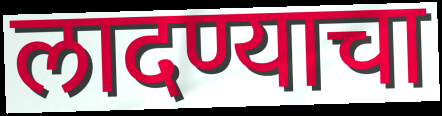
लादण्याचा